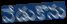
వేడుకొను